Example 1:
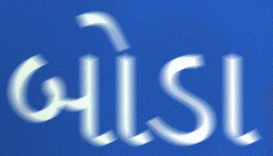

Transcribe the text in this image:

બોડા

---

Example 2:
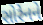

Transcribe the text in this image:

સોરેનને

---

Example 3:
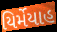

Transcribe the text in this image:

યિર્મેયાહ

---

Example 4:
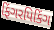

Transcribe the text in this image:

ફિંગરપિકિંગ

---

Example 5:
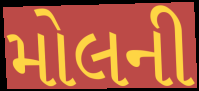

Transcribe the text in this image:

મોલની